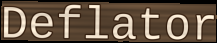
Deflator